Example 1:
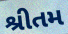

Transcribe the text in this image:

શ્રીતમ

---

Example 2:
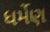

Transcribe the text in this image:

ધર્મેણ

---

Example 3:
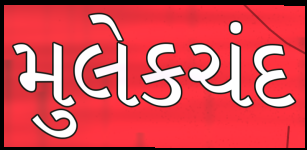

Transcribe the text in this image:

મુલેકચંદ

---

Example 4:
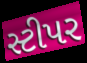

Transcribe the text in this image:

સ્ટીપર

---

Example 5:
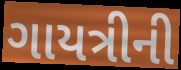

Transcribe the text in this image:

ગાયત્રીની